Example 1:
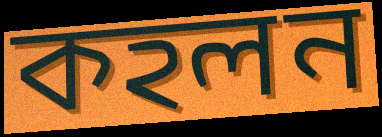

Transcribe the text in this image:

কহলন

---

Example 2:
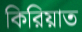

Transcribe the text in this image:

কিরিয়াত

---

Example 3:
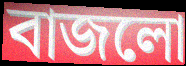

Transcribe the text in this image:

বাজলো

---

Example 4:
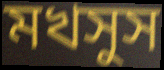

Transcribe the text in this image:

মখসুস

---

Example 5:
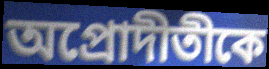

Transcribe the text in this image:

অপ্রোদীতীকে